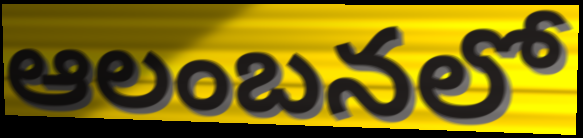
ఆలంబనలో